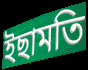
ইছামতি